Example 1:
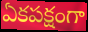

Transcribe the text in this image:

ఏకపక్షంగా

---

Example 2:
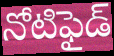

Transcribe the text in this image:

నోటిఫైడ్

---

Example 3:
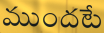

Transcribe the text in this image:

ముందటే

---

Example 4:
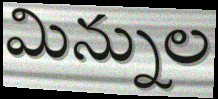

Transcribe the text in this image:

మిన్నుల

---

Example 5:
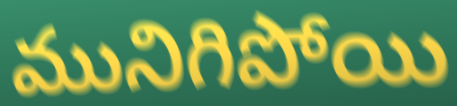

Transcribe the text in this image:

మునిగిపోయి